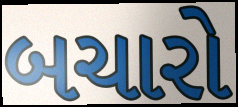
બચારો